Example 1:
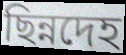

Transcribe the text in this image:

ছিন্নদেহ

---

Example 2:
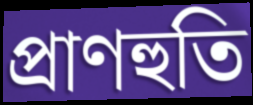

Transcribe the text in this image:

প্ৰাণহুতি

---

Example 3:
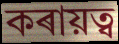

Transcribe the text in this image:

কৰায়ত্ব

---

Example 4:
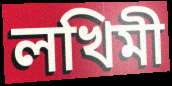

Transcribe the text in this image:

লখিমী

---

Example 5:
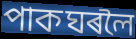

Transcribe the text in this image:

পাকঘৰলৈ